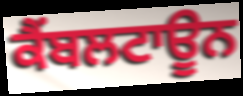
ਕੈਂਬਲਟਾਊਨ